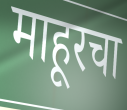
माहूरचा